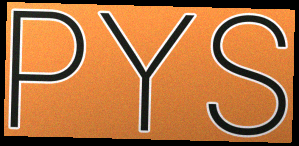
PYS